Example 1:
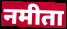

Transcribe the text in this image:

नमीता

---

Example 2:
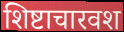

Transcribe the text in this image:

शिष्टाचारवश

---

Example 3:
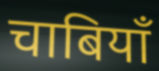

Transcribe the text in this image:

चाबियाँ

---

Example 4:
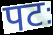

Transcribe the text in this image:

पटः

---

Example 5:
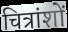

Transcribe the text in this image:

चित्रांशों